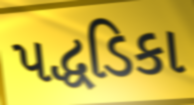
પદ્ધડિકા